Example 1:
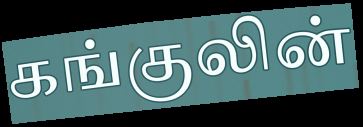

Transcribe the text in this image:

கங்குலின்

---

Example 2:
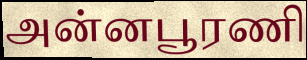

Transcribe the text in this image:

அன்னபூரணி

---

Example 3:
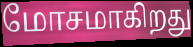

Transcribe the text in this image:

மோசமாகிறது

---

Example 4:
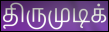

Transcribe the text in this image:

திருமுடிக்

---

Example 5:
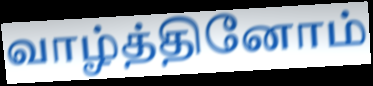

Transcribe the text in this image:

வாழ்த்தினோம்